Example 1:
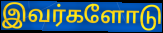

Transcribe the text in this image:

இவர்களோடு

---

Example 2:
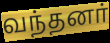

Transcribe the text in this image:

வந்தனர்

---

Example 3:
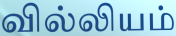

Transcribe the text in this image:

வில்லியம்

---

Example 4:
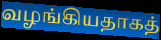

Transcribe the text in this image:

வழங்கியதாகத்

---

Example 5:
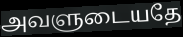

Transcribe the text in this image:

அவளுடையதே